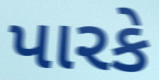
પારકે